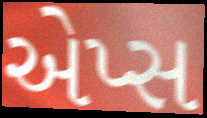
એપ્સ